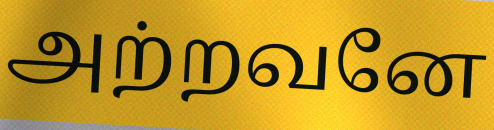
அற்றவனே